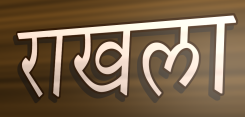
राखला